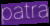
patra